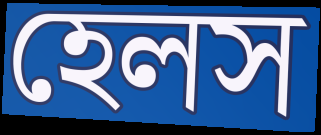
হেলস